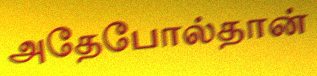
அதேபோல்தான்